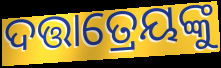
ଦତ୍ତାତ୍ରେୟଙ୍କୁ